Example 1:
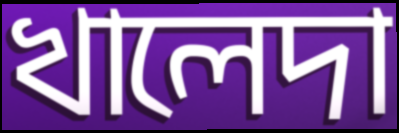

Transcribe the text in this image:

খালেদা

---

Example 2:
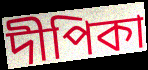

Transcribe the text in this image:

দীপিকা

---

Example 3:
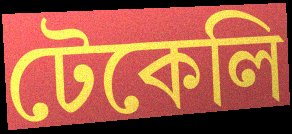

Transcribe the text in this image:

টেকেলি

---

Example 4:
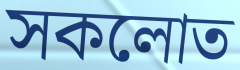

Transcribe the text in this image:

সকলোত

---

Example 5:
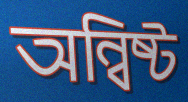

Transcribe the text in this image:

অন্বিষ্ট